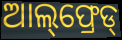
ଆଲ୍‌ଫ୍ରେଡ୍